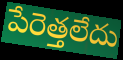
పేరెత్తలేదు